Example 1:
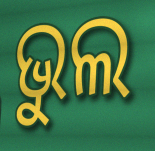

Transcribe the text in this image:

ଭୁଲ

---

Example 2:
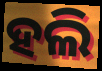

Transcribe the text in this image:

ହଲି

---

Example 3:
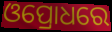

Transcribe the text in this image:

ଓପ୍ରୋଧରେ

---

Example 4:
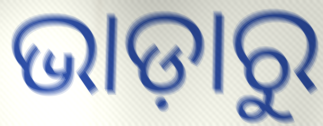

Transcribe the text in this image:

ଭାଡ଼ାରୁ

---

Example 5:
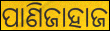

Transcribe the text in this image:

ପାଣିଜାହାଜ